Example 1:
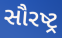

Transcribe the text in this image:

સૌરષ્ટ્ર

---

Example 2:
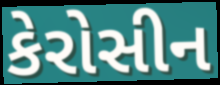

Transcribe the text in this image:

કેરોસીન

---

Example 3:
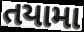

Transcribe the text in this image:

તયામા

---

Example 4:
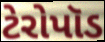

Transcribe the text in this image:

ટેરોપૉડ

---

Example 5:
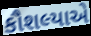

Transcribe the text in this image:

કૌશલ્યાએ